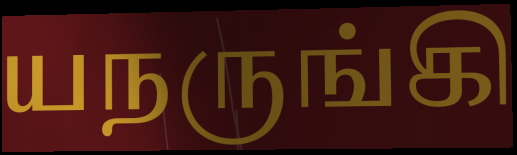
யநருங்கி